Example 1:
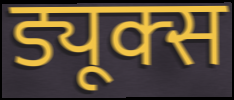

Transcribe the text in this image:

ड्यूक्‍स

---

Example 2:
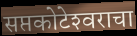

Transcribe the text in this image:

सप्तकोटेश्वराचा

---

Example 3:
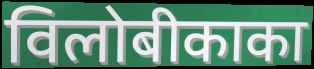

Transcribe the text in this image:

विलोबीकाका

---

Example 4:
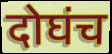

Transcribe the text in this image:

दोघंच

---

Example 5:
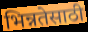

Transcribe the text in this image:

भिन्नतेसाठी